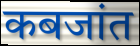
कबजांत